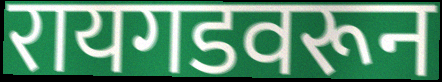
रायगडवरून